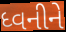
ધ્વનીને